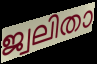
ജ്വലിതാ